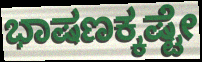
ಭಾಷಣಕ್ಕಷ್ಟೇ